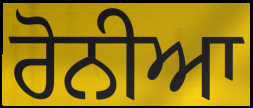
ਰੋਨੀਆ